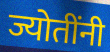
ज्योतींनी